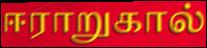
ஈராறுகால்